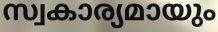
സ്വകാര്യമായും